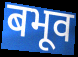
बभूव